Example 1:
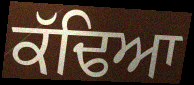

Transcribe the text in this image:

ਕੱਢਿਆ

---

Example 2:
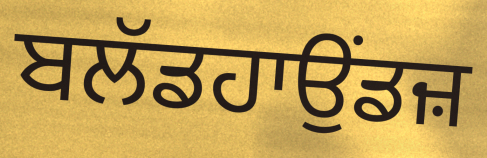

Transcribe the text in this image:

ਬਲੱਡਹਾਉਂਡਜ਼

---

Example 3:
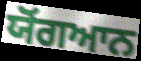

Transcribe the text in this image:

ਯੋਂਗਆਨ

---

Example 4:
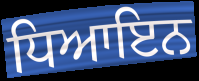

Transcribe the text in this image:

ਧਿਆਇਨ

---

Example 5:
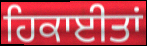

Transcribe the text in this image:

ਹਿਕਾਈਤਾਂ